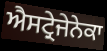
ਐਸਟ੍ਰੇਜੇਨੇਕਾ